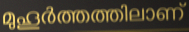
മുഹൂർത്തത്തിലാണ്